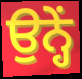
ਉਨ੍ਹੇਂ